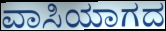
ವಾಸಿಯಾಗದ